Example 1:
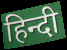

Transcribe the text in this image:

हिन्दी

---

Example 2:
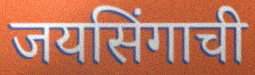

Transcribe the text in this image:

जयसिंगाची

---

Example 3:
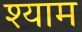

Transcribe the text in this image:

श्‍याम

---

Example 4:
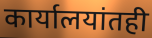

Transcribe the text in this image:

कार्यालयांतही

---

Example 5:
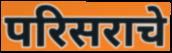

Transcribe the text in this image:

परिसराचे